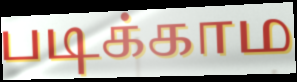
படிக்காம